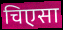
चिएसा